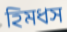
হিমধস